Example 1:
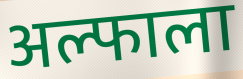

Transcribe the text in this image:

अल्फाला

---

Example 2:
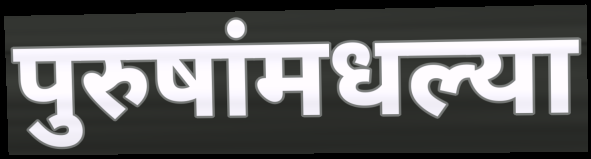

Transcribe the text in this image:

पुरुषांमधल्या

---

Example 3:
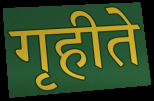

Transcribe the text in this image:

गृहीते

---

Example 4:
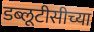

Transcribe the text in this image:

डब्लूटीसीच्या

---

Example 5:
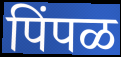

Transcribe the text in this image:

पिंपळ